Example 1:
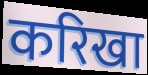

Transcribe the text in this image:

करिखा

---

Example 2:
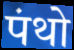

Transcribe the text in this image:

पंथो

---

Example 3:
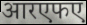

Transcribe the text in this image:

आरएफए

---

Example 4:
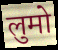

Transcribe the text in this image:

लुमो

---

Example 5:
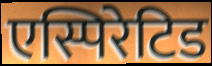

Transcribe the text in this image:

एस्पिरेटिड